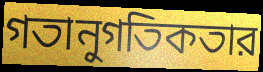
গতানুগতিকতার